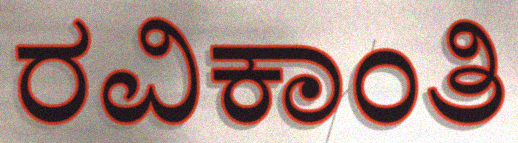
ರವಿಕಾಂತಿ